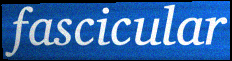
fascicular